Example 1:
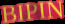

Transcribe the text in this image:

BIPIN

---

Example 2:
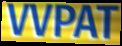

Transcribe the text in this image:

VVPAT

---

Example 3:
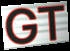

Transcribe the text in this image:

GT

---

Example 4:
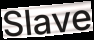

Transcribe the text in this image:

Slave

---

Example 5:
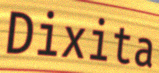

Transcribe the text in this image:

Dixita